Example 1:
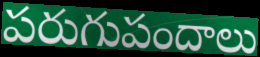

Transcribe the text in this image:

పరుగుపందాలు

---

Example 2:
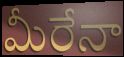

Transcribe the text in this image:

మీరేనా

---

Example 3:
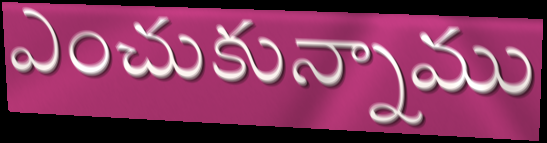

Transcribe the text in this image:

ఎంచుకున్నాము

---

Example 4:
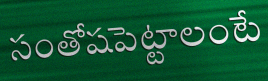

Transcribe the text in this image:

సంతోషపెట్టాలంటే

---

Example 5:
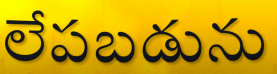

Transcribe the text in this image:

లేపబడును